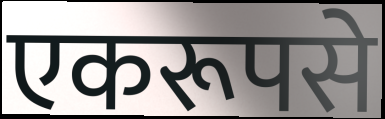
एकरूपसे